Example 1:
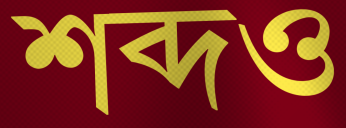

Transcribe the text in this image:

শব্দও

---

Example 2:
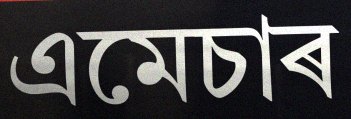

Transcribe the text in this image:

এমেচাৰ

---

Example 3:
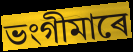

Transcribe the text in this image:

ভংগীমাৰে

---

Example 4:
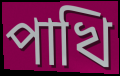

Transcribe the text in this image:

পাখি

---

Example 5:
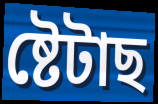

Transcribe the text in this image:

ষ্টেটাছ